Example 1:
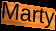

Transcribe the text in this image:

Marty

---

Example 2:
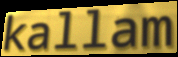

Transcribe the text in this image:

kallam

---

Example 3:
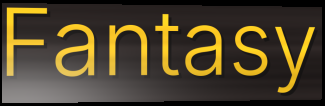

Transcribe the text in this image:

Fantasy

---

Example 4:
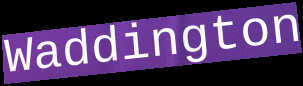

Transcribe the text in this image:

Waddington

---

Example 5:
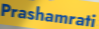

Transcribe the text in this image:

Prashamrati